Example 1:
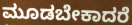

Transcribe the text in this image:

ಮೂಡಬೇಕಾದರೆ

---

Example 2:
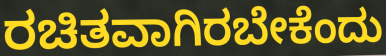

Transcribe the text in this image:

ರಚಿತವಾಗಿರಬೇಕೆಂದು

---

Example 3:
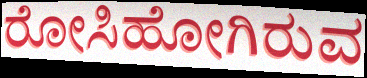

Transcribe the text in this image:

ರೋಸಿಹೋಗಿರುವ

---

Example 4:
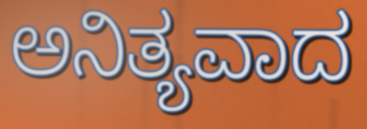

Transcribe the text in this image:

ಅನಿತ್ಯವಾದ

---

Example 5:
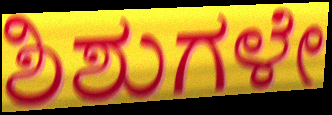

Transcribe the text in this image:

ಶಿಶುಗಳೇ